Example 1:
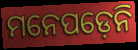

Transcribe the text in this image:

ମନେପଡ଼େନି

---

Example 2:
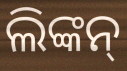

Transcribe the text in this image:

ଲିଙ୍କନ୍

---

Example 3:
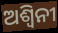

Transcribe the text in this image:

ଅଶ୍ୱିନୀ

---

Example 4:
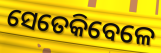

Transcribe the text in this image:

ସେତେକିବେଳେ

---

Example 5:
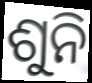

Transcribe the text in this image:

ଶୁନି